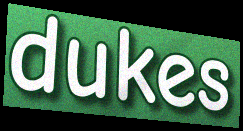
dukes